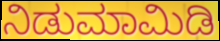
ನಿಡುಮಾಮಿಡಿ